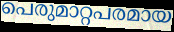
പെരുമാറ്റപരമായ